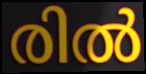
രിൽ